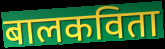
बालकविता